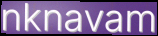
nknavam